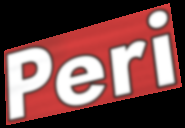
Peri